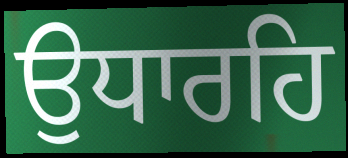
ਉਧਾਰਹਿ